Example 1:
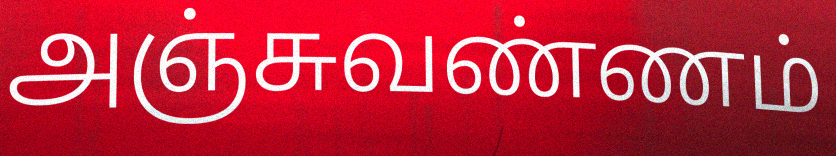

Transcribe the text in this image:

அஞ்சுவண்ணம்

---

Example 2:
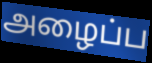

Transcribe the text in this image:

அழைப்ப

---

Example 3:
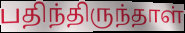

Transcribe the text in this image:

பதிந்திருந்தாள்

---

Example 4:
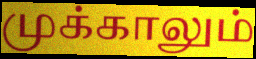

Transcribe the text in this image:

முக்காலும்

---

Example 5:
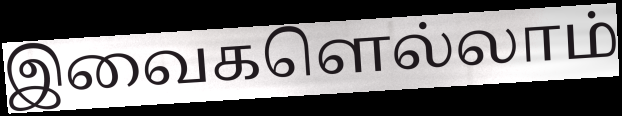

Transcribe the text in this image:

இவைகளெல்லாம்